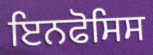
ਇਨਫੋਸਿਸ